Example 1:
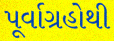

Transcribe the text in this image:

પૂર્વાગ્રહોથી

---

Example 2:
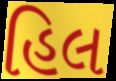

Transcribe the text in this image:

હિલ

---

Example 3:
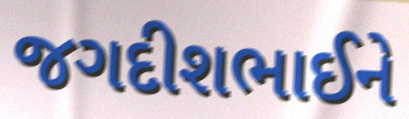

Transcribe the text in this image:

જગદીશભાઈને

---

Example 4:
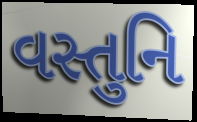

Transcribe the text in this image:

વસ્તુનિ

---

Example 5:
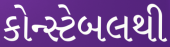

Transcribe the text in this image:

કોન્સ્ટેબલથી